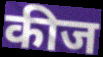
कीज